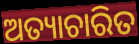
ଅତ୍ୟାଚାରିତ